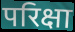
परिक्षा